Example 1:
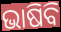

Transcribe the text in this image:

ଭାଷିବି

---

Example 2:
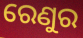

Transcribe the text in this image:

ରେଣୁର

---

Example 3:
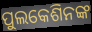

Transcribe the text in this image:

ପୁଲକେଶିନଙ୍କ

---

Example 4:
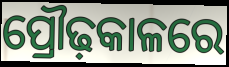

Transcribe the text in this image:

ପ୍ରୌଢ଼କାଳରେ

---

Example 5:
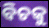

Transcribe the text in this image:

ବିଚକୁ